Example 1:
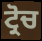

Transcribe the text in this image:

ਟ੍ਰੋਚ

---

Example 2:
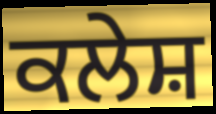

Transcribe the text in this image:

ਕਲੇਸ਼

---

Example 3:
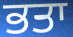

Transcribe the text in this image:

ਭਤਾ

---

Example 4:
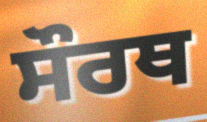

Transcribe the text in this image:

ਸੌਰਥ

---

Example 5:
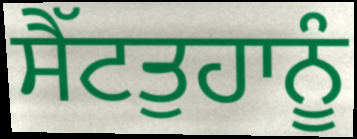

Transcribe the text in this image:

ਸੈੱਟਤੁਹਾਨੂੰ